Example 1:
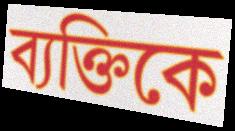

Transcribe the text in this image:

ব্যক্তিকে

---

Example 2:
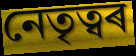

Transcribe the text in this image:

নেতৃত্বৰ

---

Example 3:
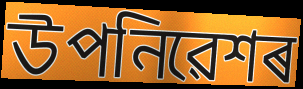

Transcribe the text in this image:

উপনিৱেশৰ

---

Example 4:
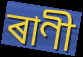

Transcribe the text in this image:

ৰাণী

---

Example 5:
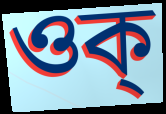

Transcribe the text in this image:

ওক্